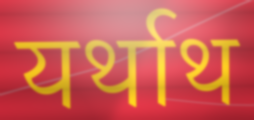
यर्थाथ